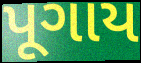
પૂગાય